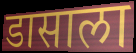
डासाला